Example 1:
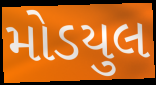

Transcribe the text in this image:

મોડયુલ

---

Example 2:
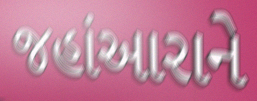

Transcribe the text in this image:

જહાંઆરાને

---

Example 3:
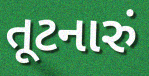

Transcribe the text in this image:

તૂટનારું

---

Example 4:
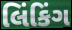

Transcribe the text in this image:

લિંકિંગ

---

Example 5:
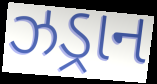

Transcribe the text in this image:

ઝડ્રાન